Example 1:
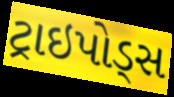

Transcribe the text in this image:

ટ્રાઇપોડ્સ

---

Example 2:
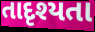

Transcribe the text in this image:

તાદૃશ્યતા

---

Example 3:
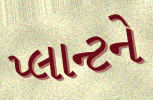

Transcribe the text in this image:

પ્લાન્ટને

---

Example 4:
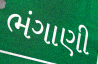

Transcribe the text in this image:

ભંગાણી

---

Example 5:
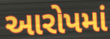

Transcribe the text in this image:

આરોપમાં